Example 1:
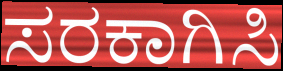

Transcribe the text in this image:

ಸರಕಾಗಿಸಿ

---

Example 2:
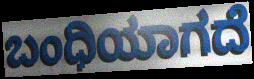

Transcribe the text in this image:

ಬಂಧಿಯಾಗದೆ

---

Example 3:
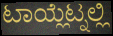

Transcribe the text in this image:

ಟಾಯ್ಲೆಟ್ನಲ್ಲಿ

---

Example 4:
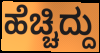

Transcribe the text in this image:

ಹೆಚ್ಚಿದ್ದು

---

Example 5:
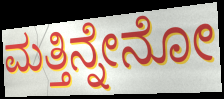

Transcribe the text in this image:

ಮತ್ತಿನ್ನೇನೋ